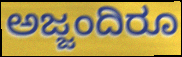
ಅಜ್ಜಂದಿರೂ